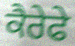
ਕੈਰੇਫੇ